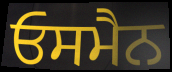
ਓਸਮੈਨ